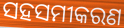
ସହସମୀକରଣ